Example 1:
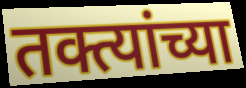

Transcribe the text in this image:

तक्त्यांच्या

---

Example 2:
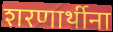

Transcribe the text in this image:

शरणार्थीना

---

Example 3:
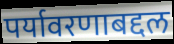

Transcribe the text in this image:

पर्यावरणाबद्दल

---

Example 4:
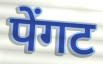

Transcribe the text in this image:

पेंगट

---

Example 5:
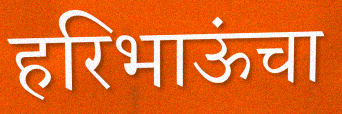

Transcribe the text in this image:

हरिभाऊंचा